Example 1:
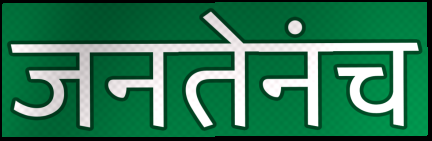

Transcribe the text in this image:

जनतेनंच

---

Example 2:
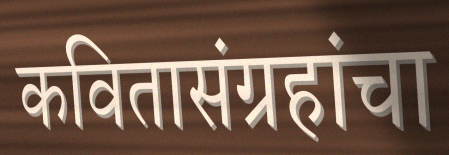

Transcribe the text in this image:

कवितासंग्रहांचा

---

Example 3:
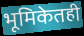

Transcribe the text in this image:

भूमिकेतही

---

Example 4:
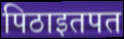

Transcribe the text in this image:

पिठाइतपत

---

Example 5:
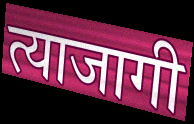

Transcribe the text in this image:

त्याजागी